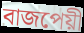
বাজপেয়ী